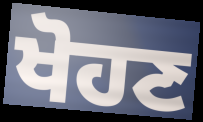
ਖੋਹਣ